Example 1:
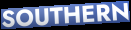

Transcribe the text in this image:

SOUTHERN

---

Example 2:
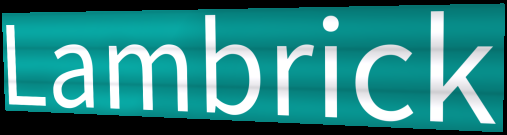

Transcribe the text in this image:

Lambrick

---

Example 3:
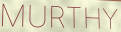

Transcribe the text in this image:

MURTHY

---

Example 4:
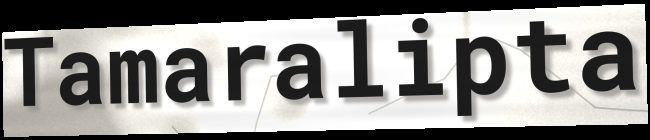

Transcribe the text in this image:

Tamaralipta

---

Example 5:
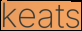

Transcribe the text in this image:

keats